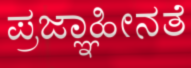
ಪ್ರಜ್ಞಾಹೀನತೆ